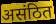
असंठित